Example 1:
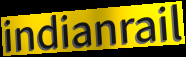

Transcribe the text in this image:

indianrail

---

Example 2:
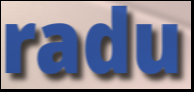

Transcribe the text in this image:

radu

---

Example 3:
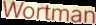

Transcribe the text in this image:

Wortman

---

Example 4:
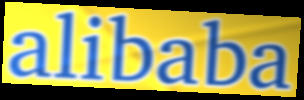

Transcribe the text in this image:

alibaba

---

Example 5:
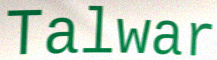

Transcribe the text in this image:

Talwar